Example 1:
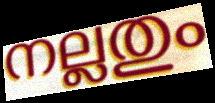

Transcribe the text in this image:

നല്ലതും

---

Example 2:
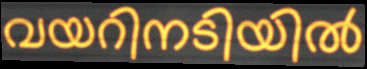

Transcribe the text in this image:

വയറിനടിയിൽ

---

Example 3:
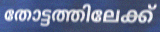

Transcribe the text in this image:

തോട്ടത്തിലേക്ക്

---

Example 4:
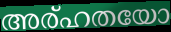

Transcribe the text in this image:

അര്ഹതയോ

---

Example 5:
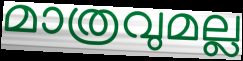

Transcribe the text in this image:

മാത്രവുമല്ല